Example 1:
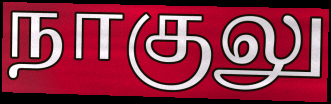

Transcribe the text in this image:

நாகுலு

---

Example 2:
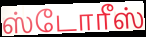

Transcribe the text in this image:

ஸ்டோரீஸ்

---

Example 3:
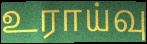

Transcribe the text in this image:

உராய்வு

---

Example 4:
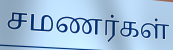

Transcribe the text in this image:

சமணர்கள்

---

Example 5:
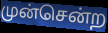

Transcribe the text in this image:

முன்சென்ற